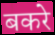
बकरे